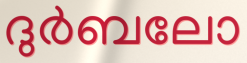
ദുർബലോ